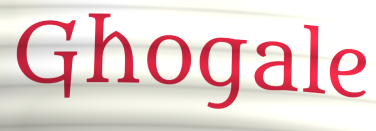
Ghogale